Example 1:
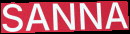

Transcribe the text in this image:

SANNA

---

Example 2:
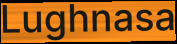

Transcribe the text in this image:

Lughnasa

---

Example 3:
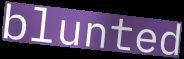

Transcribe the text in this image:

blunted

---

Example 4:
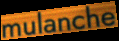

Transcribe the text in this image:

mulanche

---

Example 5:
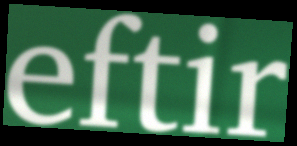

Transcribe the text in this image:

eftir